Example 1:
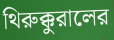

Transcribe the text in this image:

থিরুক্কুরালের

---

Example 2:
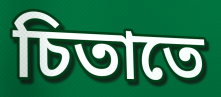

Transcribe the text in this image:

চিতাতে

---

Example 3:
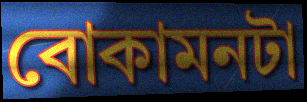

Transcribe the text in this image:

বোকামনটা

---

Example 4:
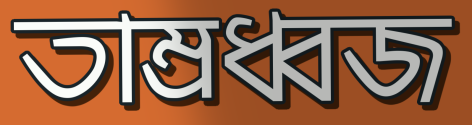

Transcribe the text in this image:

তাম্রধ্বজ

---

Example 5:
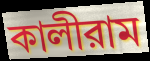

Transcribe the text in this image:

কালীরাম